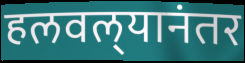
हलवल्यानंतर